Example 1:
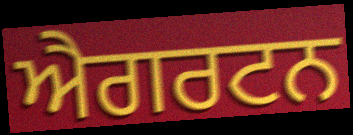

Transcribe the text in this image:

ਐਗਰਟਨ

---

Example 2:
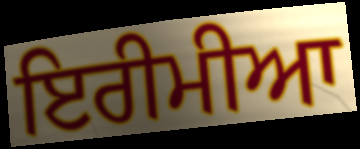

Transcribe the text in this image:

ਇਰੀਮੀਆ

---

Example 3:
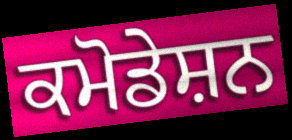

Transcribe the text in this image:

ਕਮੋਡੇਸ਼ਨ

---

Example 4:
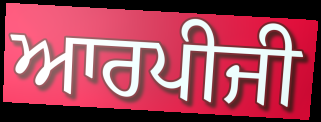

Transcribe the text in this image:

ਆਰਪੀਜੀ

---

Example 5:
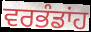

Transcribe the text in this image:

ਵਰਭੰਡਾਂਹ